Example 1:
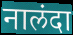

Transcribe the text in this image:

नालंदा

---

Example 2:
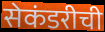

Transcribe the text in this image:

सेकंडरीची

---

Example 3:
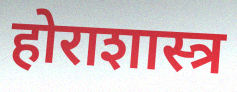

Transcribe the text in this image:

होराशास्त्र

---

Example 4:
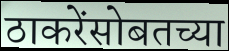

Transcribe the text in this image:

ठाकरेंसोबतच्या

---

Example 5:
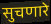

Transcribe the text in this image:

सुचणारे